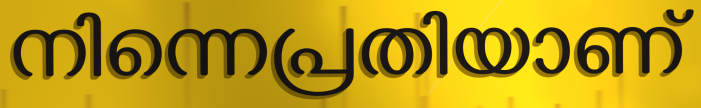
നിന്നെപ്രതിയാണ്